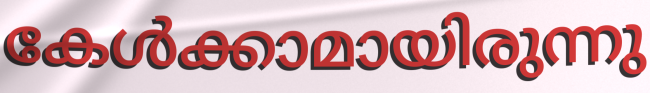
കേൾക്കാമായിരുന്നു